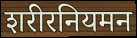
शरीरनियमन